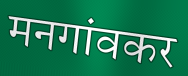
मनगांवकर